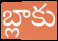
బ్లాకు